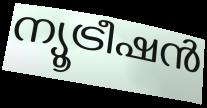
ന്യൂട്രീഷൻ